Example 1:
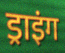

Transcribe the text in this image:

ड्राइंग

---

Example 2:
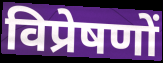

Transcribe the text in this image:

विप्रेषणों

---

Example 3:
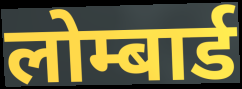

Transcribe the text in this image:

लोम्बार्ड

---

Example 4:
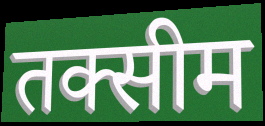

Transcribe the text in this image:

तक्सीम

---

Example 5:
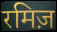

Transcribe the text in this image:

रमिज़